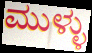
ಮುಳ್ಳು